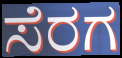
ಸೆರಗ